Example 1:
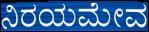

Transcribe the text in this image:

ನಿರಯಮೇವ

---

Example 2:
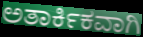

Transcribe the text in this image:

ಅತಾರ್ಕಿಕವಾಗಿ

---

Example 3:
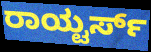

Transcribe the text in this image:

ರಾಯ್ಟರ್ಸ್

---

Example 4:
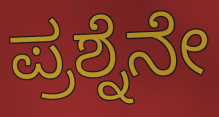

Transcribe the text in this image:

ಪ್ರಶ್ನೆನೇ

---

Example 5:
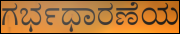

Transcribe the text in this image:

ಗರ್ಭಧಾರಣೆಯ